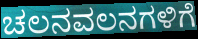
ಚಲನವಲನಗಳಿಗೆ